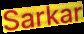
Sarkar